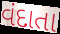
વંદાતા